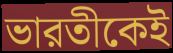
ভারতীকেই